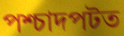
পশ্চাদপটত